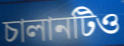
চালানটিও